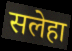
सलेहा